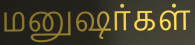
மனுஷர்கள்